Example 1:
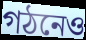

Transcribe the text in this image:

গঠনেও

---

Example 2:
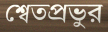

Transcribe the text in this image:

শ্বেতপ্রভুর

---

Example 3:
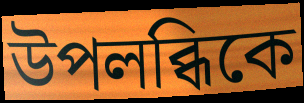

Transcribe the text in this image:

উপলব্ধিকে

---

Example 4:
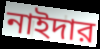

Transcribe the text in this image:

নাইদার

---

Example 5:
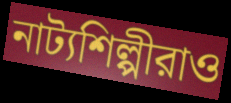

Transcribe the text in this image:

নাট্যশিল্পীরাও